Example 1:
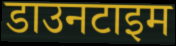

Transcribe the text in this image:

डाउनटाइम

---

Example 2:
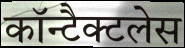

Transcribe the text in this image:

कॉन्टैक्टलेस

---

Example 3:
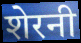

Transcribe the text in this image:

शेरनी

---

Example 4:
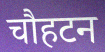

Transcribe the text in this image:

चौहटन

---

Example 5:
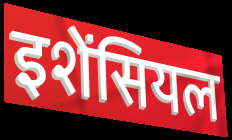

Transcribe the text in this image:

इशेंसियल